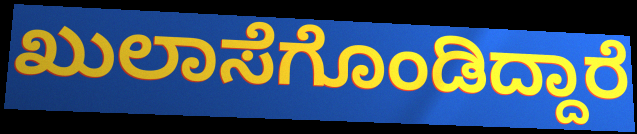
ಖುಲಾಸೆಗೊಂಡಿದ್ದಾರೆ